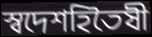
স্বদেশহিতৈষী